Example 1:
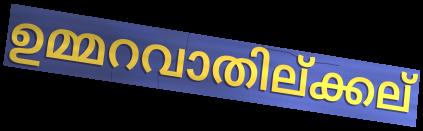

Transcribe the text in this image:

ഉമ്മറവാതില്ക്കല്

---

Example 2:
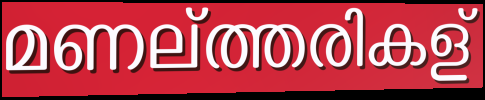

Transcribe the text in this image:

മണല്ത്തരികള്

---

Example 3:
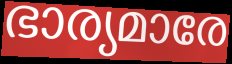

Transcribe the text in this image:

ഭാര്യമാരേ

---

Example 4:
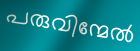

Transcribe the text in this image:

പരുവിന്മേൽ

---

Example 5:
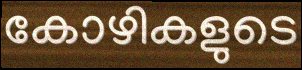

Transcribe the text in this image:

കോഴികളുടെ